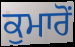
ਕੁਮਾਰੋਂ